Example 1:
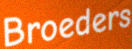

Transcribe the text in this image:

Broeders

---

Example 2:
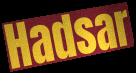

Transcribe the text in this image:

Hadsar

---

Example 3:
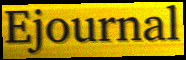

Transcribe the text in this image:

Ejournal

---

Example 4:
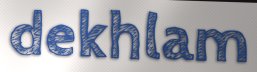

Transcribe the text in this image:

dekhlam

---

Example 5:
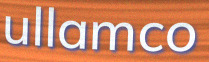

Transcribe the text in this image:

ullamco